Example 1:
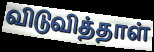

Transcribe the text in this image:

விடுவித்தாள்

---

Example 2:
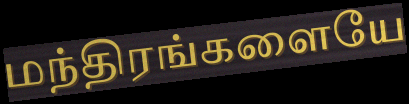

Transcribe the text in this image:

மந்திரங்களையே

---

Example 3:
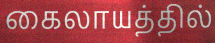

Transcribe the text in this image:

கைலாயத்தில்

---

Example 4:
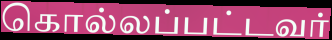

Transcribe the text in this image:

கொல்லப்பட்டவர்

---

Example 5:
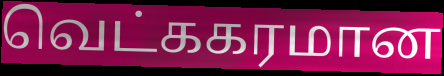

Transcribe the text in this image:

வெட்ககரமான